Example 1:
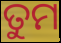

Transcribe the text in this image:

ତୁମ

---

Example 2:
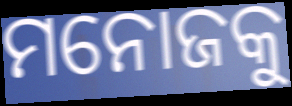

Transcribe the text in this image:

ମନୋଜକୁ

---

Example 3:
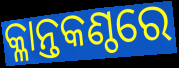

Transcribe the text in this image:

କ୍ଳାନ୍ତକଣ୍ଠରେ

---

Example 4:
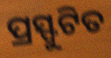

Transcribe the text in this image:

ପ୍ରସ୍ଫୁଟିତ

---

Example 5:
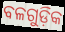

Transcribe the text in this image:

ବଳଗୁଡ଼ିକ